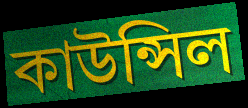
কাউন্সিল